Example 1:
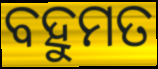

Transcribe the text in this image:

ବହୁମତ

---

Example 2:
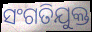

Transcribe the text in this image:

ସଂଗତିଯୁକ୍ତ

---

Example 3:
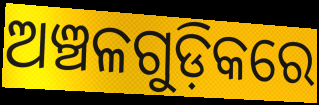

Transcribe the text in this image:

ଅଞ୍ଚଳଗୁଡ଼ିକରେ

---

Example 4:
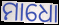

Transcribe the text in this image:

ମାଧୋ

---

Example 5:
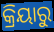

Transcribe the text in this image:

କ୍ରିୟାରୁ